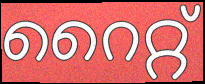
റൈറ്റ്